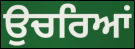
ਉਚਰਿਆਂ